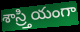
శాస్ర్తియంగా